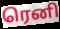
ரெனி